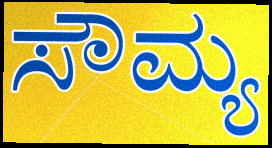
ಸೌಮ್ಯ